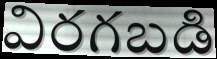
విరగబడి